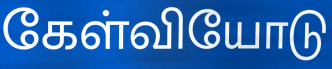
கேள்வியோடு